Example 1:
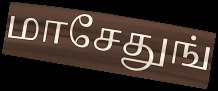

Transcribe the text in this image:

மாசேதுங்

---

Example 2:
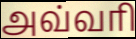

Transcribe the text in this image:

அவ்வரி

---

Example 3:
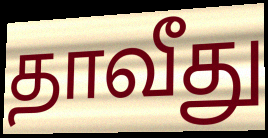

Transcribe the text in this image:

தாவீது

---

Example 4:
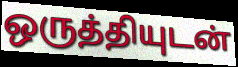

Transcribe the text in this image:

ஒருத்தியுடன்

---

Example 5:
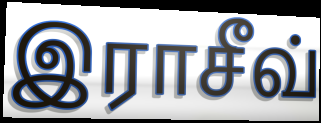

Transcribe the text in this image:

இராசீவ்